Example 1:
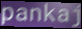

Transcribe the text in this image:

pankaj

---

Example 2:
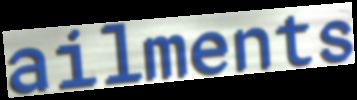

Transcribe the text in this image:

ailments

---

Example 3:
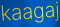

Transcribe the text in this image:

kaagaj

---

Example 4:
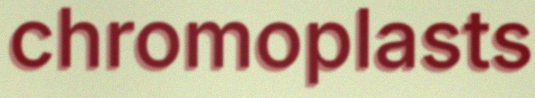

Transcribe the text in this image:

chromoplasts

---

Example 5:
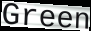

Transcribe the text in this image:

Green